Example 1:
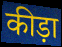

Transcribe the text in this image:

कीड़ा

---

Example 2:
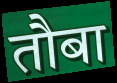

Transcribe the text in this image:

तौबा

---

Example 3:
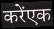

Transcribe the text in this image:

करेंएक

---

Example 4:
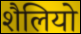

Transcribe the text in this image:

शैलियो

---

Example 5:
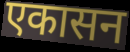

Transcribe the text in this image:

एकासन